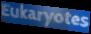
Eukaryotes